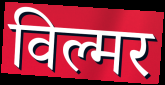
विल्मर